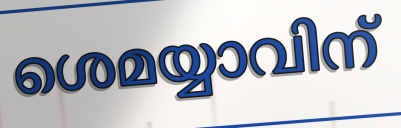
ശെമയ്യാവിന്